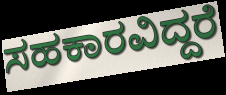
ಸಹಕಾರವಿದ್ದರೆ